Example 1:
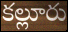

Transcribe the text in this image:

కల్లూరు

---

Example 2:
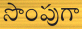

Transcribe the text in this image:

సొంపుగా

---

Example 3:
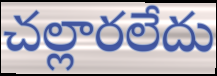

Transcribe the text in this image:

చల్లారలేదు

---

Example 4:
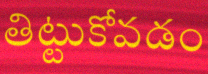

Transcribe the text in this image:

తిట్టుకోవడం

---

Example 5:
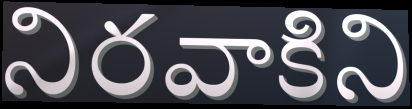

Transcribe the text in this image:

నిరవాకిని